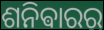
ଶନିଵାରର